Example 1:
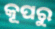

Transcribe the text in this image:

କୂପରୁ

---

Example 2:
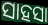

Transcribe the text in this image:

ସାହସା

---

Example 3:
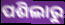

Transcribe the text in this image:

ପଶିଲାରୁ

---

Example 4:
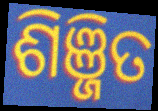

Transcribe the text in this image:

ଶିଞ୍ଜିତ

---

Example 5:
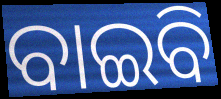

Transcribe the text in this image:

ବାଇବି